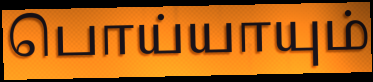
பொய்யாயும்